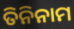
ତିନିନାମ